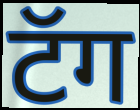
टॅग